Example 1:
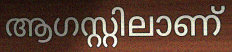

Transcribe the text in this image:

ആഗസ്റ്റിലാണ്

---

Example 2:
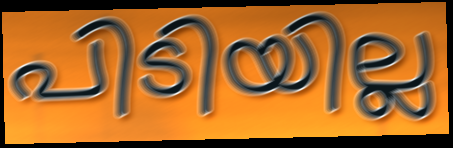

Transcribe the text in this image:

പിടിയില്ല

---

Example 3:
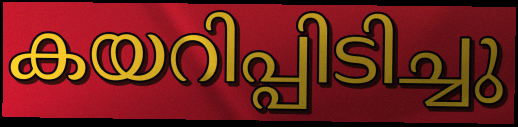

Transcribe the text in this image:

കയറിപ്പിടിച്ചു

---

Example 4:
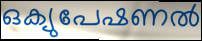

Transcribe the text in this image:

ഒക്യുപേഷണൽ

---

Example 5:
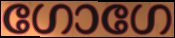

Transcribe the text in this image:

ഗോഗേ